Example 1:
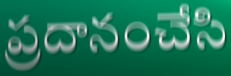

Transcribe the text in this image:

ప్రదానంచేసి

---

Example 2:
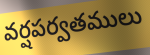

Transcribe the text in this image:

వర్షపర్వతములు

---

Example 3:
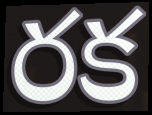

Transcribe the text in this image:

రక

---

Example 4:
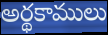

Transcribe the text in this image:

అర్థకాములు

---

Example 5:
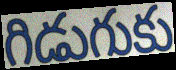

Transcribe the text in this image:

గిడుగుకు